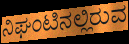
ನಿಘಂಟಿನಲ್ಲಿರುವ